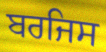
ਬਰਜਿਸ